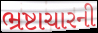
ભ્રષ્ટાચારની